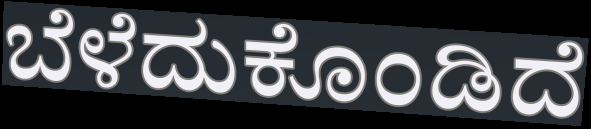
ಬೆಳೆದುಕೊಂಡಿದೆ